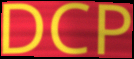
DCP